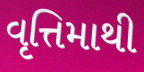
વૃત્તિમાથી